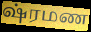
ஷ்ரமண